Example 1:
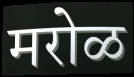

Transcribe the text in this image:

मरोळ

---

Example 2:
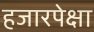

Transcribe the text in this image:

हजारपेक्षा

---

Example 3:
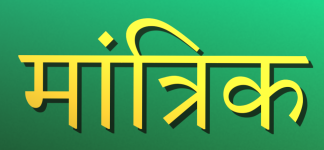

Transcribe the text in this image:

मांत्रिक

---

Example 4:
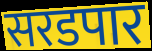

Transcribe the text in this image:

सरडपार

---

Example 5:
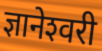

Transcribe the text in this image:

ज्ञानेश्‍वरी